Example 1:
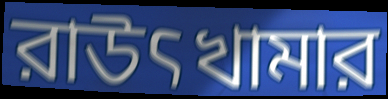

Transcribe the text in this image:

রাউৎখামার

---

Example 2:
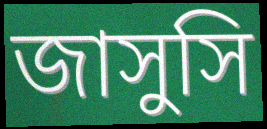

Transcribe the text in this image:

জাসুসি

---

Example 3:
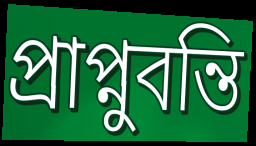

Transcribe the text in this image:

প্রাপ্নুবন্তি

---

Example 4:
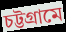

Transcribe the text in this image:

চট্টগ্রামে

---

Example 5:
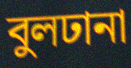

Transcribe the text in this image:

বুলঢানা